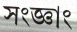
সংজ্ঞাং